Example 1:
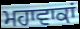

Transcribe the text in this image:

ਮਹਾਵਾਕਾਂ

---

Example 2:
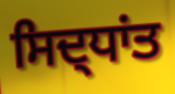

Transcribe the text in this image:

ਸਿਦ੍ਧਾਂਤ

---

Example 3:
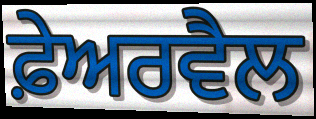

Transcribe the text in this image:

ਫ਼ੇਅਰਵੈਲ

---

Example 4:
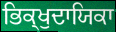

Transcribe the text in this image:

ਭਿਕ੍ਖੁਦਾਯਿਕਾ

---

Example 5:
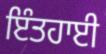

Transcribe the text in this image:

ਇੰਤਹਾਈ